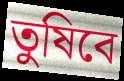
তুষিবে